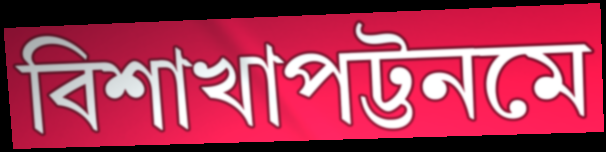
বিশাখাপট্টনমে